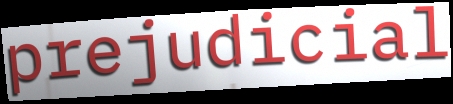
prejudicial